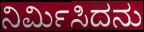
ನಿರ್ಮಿಸಿದನು